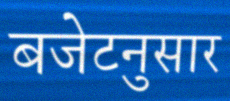
बजेटनुसार